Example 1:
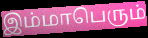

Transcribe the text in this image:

இம்மாபெரும்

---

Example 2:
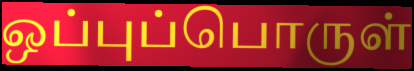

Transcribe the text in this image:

ஒப்புப்பொருள்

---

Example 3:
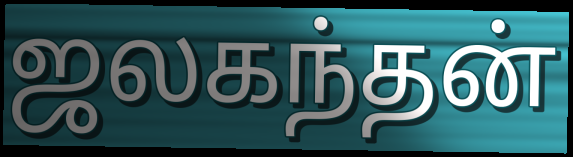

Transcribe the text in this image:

ஜலகந்தன்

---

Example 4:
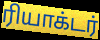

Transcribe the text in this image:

ரியாக்டர்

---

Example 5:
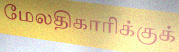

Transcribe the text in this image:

மேலதிகாரிக்குக்